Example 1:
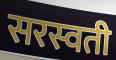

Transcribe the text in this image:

सरस्‍वती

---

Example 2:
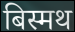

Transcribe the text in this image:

बिस्मथ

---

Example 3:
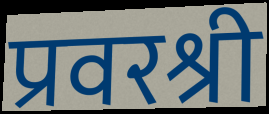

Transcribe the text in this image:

प्रवरश्री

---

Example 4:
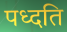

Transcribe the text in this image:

पध्दति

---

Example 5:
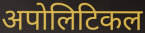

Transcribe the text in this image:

अपोलिटिकल